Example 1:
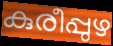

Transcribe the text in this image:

കുരീപ്പുഴ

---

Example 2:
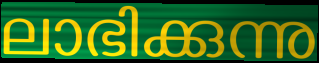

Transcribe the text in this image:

ലാഭിക്കുന്നു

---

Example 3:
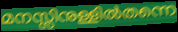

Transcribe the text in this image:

മനസ്സിനുള്ളിൽതന്നെ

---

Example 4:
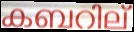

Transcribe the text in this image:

കബറില്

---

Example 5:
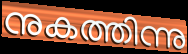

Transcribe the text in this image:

നുകത്തിന്നു